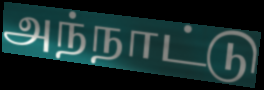
அந்நாட்டு